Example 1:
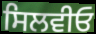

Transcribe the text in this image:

ਸਿਲਵੀਓ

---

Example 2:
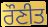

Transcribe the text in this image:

ਰੌਣੀਤ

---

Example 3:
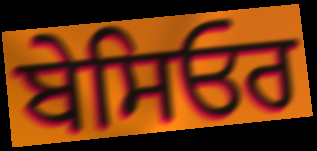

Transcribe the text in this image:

ਬੇਸਿਓਰ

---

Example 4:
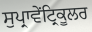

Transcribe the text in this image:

ਸੁਪ੍ਰਾਵੇਂਟ੍ਰਿਕੂਲਰ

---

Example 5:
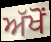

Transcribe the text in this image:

ਅੱਖੋਂ